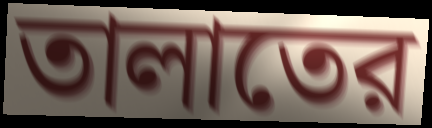
তালাতের